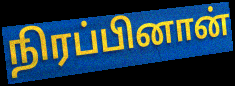
நிரப்பினான்